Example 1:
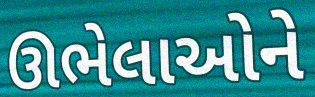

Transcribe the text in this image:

ઊભેલાઓને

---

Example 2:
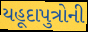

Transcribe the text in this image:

યહૂદાપુત્રોની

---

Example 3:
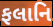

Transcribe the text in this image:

ફલાનિ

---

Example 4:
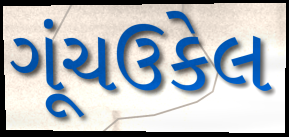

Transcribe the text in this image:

ગૂંચઉકેલ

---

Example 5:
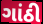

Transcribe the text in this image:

ગાંઠી